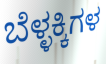
ಬೆಳ್ಳಕ್ಕಿಗಳ